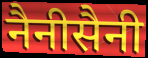
नैनीसैनी